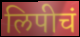
लिपीचं